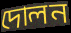
দোলন